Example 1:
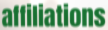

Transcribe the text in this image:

affiliations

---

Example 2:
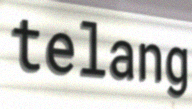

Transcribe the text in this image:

telang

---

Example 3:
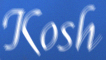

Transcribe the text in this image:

Kosh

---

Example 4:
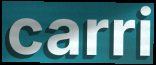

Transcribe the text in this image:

carri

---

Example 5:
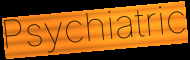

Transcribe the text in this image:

Psychiatric